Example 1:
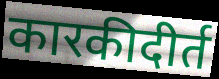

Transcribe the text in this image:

कारकीदीर्त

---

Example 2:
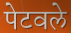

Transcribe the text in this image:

पेटवले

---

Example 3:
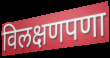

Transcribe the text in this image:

विलक्षणपणा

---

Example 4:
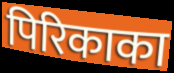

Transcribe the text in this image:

पिरिकाका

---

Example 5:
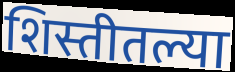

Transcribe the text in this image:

शिस्तीतल्या